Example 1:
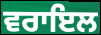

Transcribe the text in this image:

ਵਰਾਇਲ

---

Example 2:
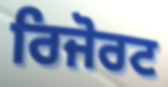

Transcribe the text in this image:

ਰਿਜੋਰਟ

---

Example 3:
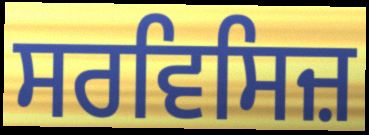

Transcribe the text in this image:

ਸਰਵਿਸਿਜ਼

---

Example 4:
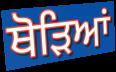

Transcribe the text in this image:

ਥੋੜਿਆਂ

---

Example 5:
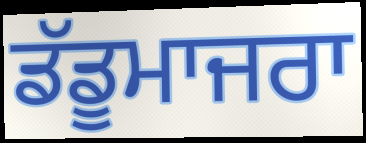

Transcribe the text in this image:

ਡੱਡੂਮਾਜਰਾ